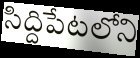
సిద్దిపేటలోని